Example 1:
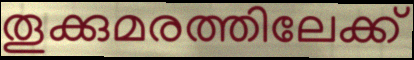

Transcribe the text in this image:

തൂക്കുമരത്തിലേക്ക്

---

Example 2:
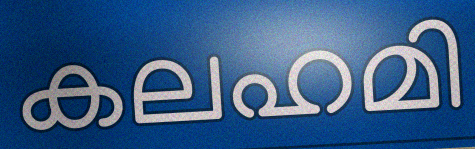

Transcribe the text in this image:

കലഹമി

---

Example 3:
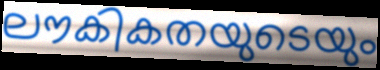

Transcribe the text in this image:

ലൗകികതയുടെയും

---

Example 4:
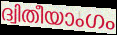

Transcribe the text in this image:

ദ്വിതീയാംഗം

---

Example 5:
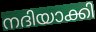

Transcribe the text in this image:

നദിയാക്കി